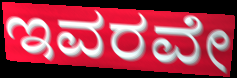
ಇವರವೇ